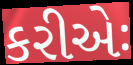
કરીએઃ